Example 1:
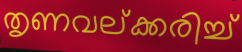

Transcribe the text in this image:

തൃണവല്ക്കരിച്ച്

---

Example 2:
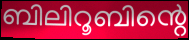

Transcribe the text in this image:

ബിലിറൂബിന്റെ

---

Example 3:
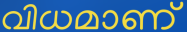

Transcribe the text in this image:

വിധമാണ്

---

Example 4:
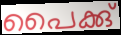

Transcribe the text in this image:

പൈക്കു്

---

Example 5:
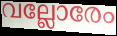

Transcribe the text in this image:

വല്ലോരേം